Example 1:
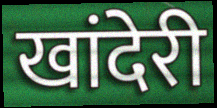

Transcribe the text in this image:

खांदेरी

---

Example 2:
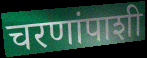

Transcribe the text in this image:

चरणांपाशी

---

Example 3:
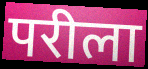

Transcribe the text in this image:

परीला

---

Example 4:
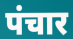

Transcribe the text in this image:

पंचार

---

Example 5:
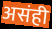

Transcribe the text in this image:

असंही